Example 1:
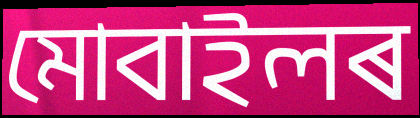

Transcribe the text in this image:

মোবাইলৰ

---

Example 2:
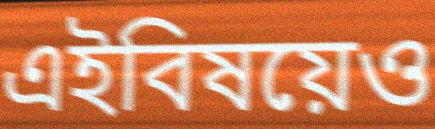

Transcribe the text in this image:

এইবিষয়েও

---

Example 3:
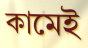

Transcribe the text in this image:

কামেই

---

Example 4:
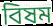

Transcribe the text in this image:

বিষম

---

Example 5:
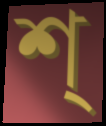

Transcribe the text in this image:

শ্